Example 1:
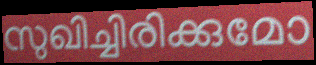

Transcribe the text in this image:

സുഖിച്ചിരിക്കുമോ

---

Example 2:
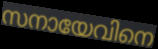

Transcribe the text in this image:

സനായേവിനെ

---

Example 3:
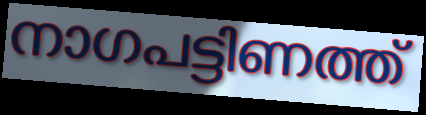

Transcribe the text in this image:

നാഗപട്ടിണത്ത്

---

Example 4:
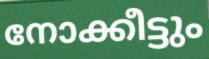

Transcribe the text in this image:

നോക്കീട്ടും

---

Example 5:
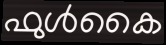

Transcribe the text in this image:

ഫുൾകൈ